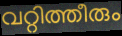
വറ്റിത്തീരും